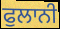
ਫੁਲਾਨੀ